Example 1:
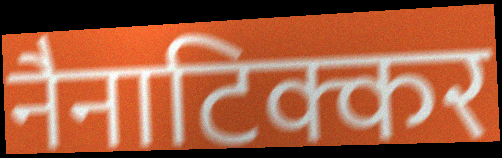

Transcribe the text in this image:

नैनाटिक्कर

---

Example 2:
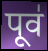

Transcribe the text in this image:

पूव॑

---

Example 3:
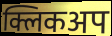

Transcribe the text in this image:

क्लिकअप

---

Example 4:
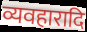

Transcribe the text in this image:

व्यवहारादि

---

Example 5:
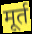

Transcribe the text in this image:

मूर्त